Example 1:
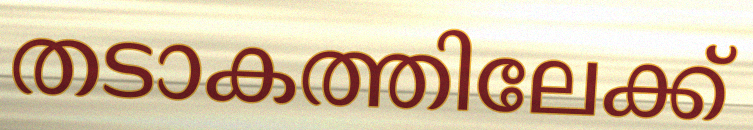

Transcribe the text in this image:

തടാകത്തിലേക്ക്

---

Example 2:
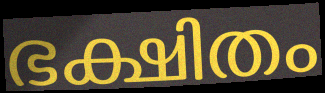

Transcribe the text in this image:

ഭക്ഷിതം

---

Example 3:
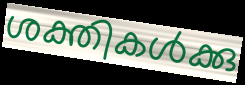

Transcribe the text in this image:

ശക്തികൾക്കു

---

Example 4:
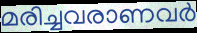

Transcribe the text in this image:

മരിച്ചവരാണവർ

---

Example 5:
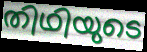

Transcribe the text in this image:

തിഥിയുടെ